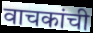
वाचकांची